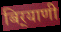
बिर्याणी